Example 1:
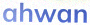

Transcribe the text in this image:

ahwan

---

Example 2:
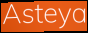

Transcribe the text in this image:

Asteya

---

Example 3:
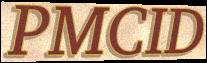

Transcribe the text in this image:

PMCID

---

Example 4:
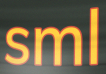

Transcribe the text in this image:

sml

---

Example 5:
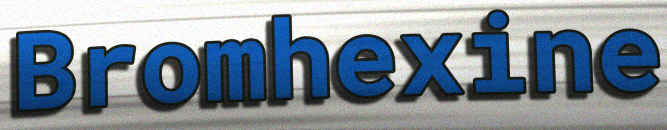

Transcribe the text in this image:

Bromhexine